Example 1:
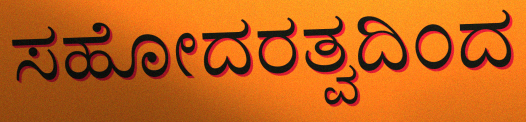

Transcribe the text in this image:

ಸಹೋದರತ್ವದಿಂದ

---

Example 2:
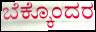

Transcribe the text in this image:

ಬೆಕ್ಕೊಂದರ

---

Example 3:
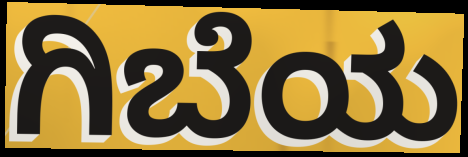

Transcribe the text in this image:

ಗಿಬೆಯ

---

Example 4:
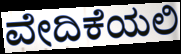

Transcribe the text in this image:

ವೇದಿಕೆಯಲಿ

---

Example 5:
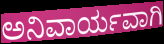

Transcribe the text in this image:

ಅನಿವಾರ್ಯವಾಗಿ